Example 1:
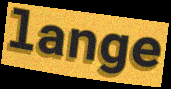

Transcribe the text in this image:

lange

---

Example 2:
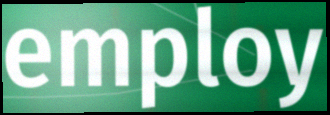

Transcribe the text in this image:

employ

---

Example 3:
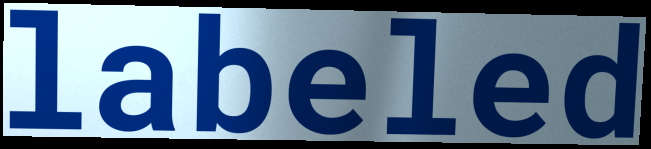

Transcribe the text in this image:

labeled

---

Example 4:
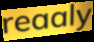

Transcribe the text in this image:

reaaly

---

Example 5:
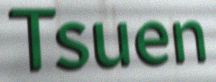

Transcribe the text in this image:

Tsuen